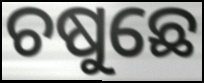
ଚଷୁଛେ